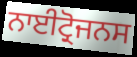
ਨਾਈਟ੍ਰੋਜਨਸ